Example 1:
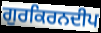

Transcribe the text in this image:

ਗੁਰਕਿਰਨਦੀਪ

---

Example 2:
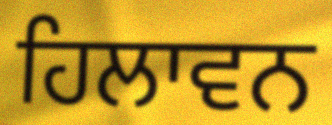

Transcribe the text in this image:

ਹਿਲਾਵਨ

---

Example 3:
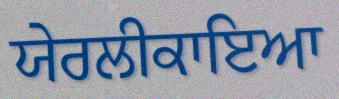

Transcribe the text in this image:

ਯੇਰਲੀਕਾਇਆ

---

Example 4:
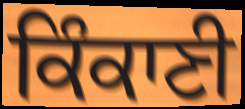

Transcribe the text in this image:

ਕਿੰਕਾਣੀ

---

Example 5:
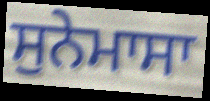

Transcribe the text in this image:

ਸੁਨੇਮਾਸਾ